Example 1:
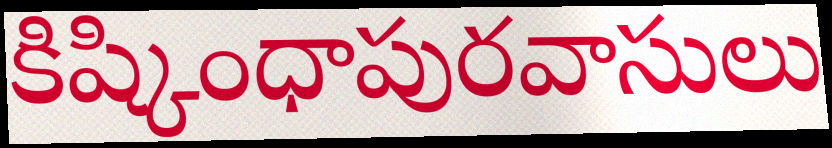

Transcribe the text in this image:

కిష్కింధాపురవాసులు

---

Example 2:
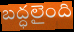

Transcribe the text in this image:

బద్ధలైంది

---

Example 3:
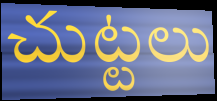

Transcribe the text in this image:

చుట్టలు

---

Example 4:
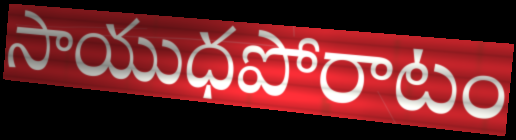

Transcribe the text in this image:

సాయుధపోరాటం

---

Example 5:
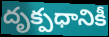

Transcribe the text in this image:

దృక్పధానికీ